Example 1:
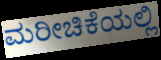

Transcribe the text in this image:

ಮರೀಚಿಕೆಯಲ್ಲಿ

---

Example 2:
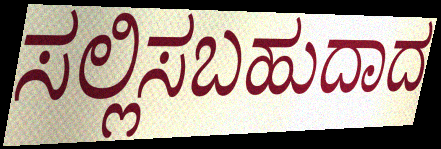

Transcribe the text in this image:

ಸಲ್ಲಿಸಬಹುದಾದ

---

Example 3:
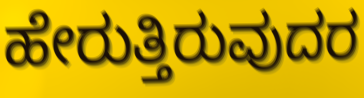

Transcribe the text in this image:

ಹೇರುತ್ತಿರುವುದರ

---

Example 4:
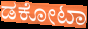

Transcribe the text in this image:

ಡಕೋಟಾ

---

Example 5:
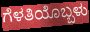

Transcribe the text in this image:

ಗೆಳತಿಯೊಬ್ಬಳು